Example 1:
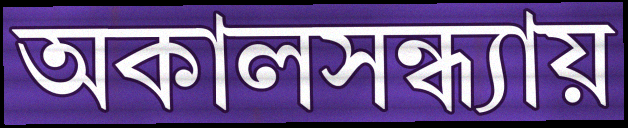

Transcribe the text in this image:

অকালসন্ধ্যায়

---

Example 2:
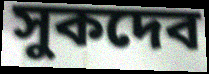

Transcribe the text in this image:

সুকদেব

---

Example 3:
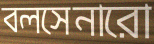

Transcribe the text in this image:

বলসেনারো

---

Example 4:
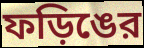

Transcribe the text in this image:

ফড়িঙের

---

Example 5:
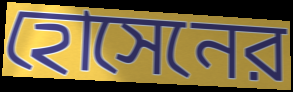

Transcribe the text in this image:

হোসেনের